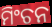
ମିଂଚନ